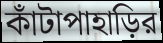
কাঁটাপাহাড়ির